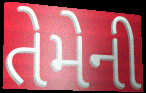
તેમેની